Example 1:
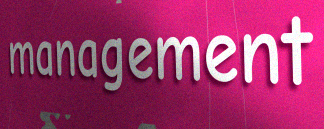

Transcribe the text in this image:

management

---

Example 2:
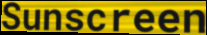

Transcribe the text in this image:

Sunscreen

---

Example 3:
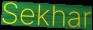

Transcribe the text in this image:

Sekhar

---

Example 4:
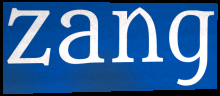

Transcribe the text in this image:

zang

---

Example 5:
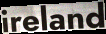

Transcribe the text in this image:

ireland